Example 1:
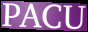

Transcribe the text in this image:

PACU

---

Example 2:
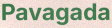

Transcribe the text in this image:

Pavagada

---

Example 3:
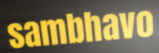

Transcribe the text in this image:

sambhavo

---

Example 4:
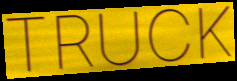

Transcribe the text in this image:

TRUCK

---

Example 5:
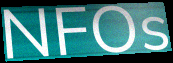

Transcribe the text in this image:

NFOs